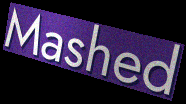
Mashed